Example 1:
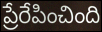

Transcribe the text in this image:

ప్రేరేపించింది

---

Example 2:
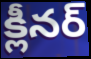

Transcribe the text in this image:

క్లీనర్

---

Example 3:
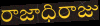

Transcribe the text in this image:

రాజాధిరాజు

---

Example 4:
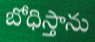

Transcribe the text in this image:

బోధిస్తాను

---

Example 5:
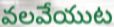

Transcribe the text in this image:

వలవేయుట